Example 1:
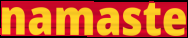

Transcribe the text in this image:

namaste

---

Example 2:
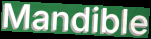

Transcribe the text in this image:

Mandible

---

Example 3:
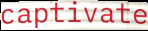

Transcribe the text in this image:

captivate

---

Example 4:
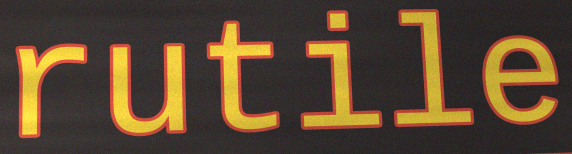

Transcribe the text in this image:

rutile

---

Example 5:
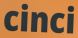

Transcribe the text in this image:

cinci